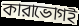
কারাভোগই